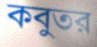
কবুতর